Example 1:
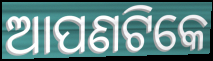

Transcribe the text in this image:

ଆପଣଟିକେ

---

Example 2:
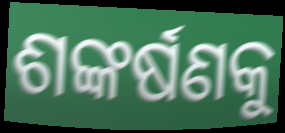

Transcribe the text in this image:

ଶଙ୍କର୍ଷଣକୁ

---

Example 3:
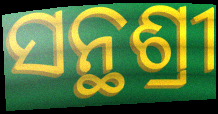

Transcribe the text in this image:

ସନ୍ଥଶ୍ରୀ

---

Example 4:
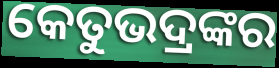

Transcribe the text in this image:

କେତୁଭଦ୍ରଙ୍କର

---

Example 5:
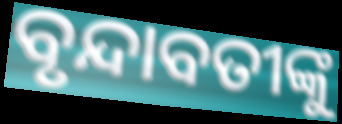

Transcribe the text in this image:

ବୃନ୍ଦାବତୀଙ୍କୁ